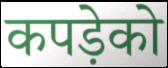
कपड़ेको